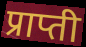
प्राप्ती